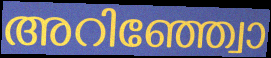
അറിഞ്ഞ്വോ